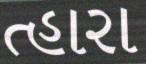
ત્હારા